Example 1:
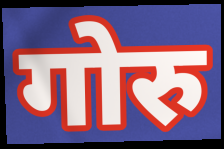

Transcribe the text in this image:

गोरु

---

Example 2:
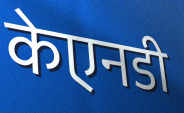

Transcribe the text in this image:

केएनडी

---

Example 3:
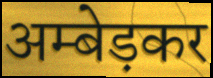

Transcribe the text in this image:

अम्बेड़कर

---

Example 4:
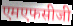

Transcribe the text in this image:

एमएफसीजी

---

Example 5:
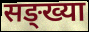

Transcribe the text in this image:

सङ्ख्या